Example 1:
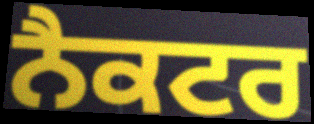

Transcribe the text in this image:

ਨੈਕਟਰ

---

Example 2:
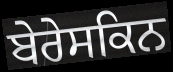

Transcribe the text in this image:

ਬੇਰੇਸਕਿਨ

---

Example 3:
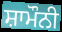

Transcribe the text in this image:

ਸ਼ਾਮੌਨੀ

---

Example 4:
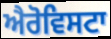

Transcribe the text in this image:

ਐਰੋਵਿਸਟਾ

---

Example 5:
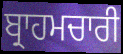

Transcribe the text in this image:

ਬ੍ਰਾਹਮਚਾਰੀ